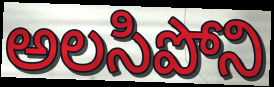
అలసిపోని